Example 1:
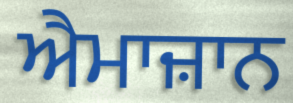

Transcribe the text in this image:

ਐਮਾਜ਼ਾਨ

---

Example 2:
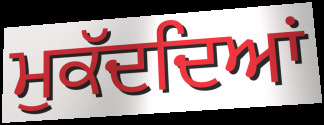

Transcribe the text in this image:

ਮੁਕੱਦਦਿਆਂ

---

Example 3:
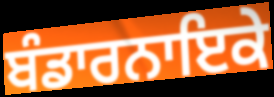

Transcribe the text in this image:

ਬੰਡਾਰਨਾਇਕੇ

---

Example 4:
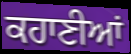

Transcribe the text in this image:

ਕਹਾਣੀਆਂ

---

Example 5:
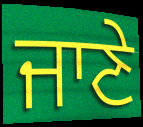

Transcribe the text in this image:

ਜਾਣੇ